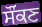
ਸੌਂਕਣ